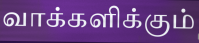
வாக்களிக்கும்